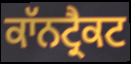
ਕਾੱਨਟ੍ਰੈਕਟ